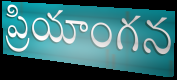
ప్రియాంగన